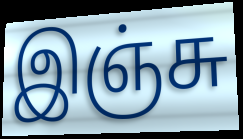
இஞ்சு